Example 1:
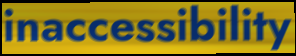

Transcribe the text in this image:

inaccessibility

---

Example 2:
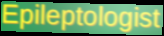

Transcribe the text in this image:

Epileptologist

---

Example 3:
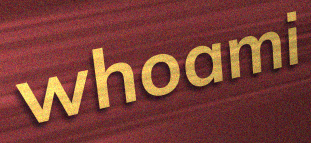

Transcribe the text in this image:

whoami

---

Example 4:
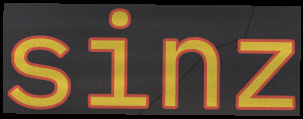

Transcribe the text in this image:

sinz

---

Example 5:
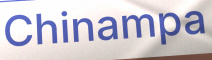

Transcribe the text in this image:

Chinampa